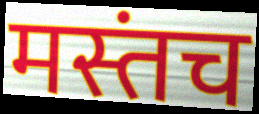
मस्तंच